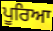
ਪੂਰਿਆ